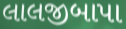
લાલજીબાપા